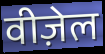
वीज़ेल